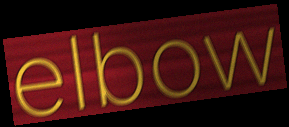
elbow